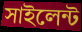
সাইলেন্ট